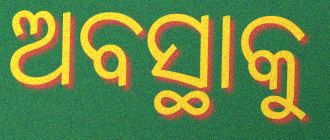
ଅବସ୍ଥାକୁ